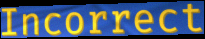
Incorrect